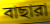
বাছারা